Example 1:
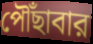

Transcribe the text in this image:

পৌঁছাবার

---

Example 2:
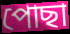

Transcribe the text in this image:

পোছা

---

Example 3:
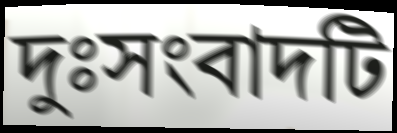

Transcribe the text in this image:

দুঃসংবাদটি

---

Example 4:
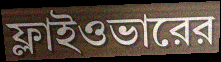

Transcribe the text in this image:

ফ্লাইওভারের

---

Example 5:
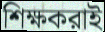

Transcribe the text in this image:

শিক্ষকরাই